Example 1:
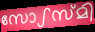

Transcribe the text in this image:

സോഽസ്മി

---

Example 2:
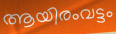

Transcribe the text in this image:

ആയിരംവട്ടം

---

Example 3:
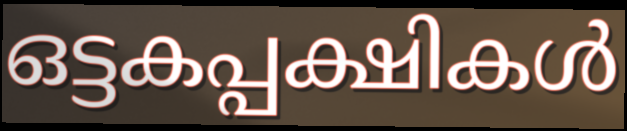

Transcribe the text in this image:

ഒട്ടകപ്പക്ഷികൾ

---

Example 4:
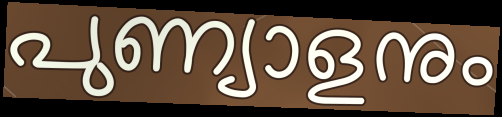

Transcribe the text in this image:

പുണ്യാളനും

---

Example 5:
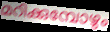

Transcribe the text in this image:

മറിക്കുമ്പോഴും